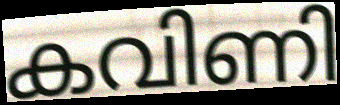
കവിണി